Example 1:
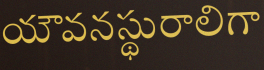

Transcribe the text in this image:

యౌవనస్థురాలిగా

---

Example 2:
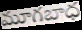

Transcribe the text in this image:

మూగబాధ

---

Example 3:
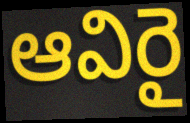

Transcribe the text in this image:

ఆవిరై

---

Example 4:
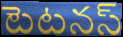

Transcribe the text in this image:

టెటనస్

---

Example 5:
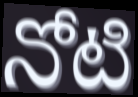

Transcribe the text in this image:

నోటి